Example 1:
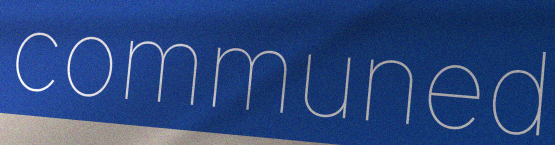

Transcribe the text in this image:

communed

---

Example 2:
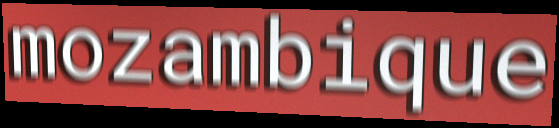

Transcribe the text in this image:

mozambique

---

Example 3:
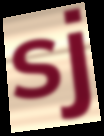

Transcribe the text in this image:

sj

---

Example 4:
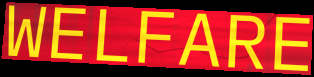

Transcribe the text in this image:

WELFARE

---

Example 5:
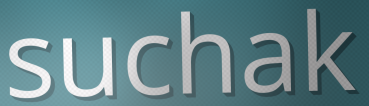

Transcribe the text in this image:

suchak